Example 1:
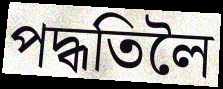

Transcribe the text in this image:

পদ্ধতিলৈ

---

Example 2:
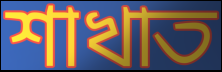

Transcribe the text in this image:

শাখাত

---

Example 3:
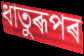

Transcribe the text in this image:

ধাতুৰূপৰ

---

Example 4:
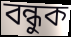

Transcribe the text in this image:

বন্ধুক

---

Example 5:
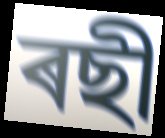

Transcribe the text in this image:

ৰছী